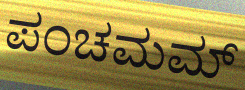
ಪಂಚಮಮ್